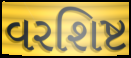
વરશિષ્ટ